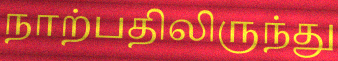
நாற்பதிலிருந்து